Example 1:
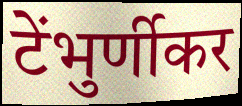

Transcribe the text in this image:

टेंभुर्णीकर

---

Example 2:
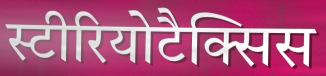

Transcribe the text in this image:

स्टीरियोटैक्सिस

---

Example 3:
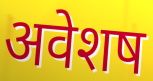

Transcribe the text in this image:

अवेशष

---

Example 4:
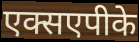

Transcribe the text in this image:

एक्सएपीके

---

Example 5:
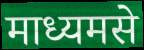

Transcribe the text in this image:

माध्यमसे